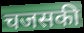
चजसकी